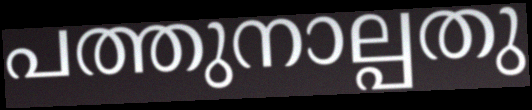
പത്തുനാല്പതു